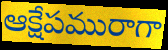
ఆక్షేపమురాగా